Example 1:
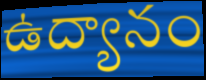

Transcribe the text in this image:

ఉద్యానం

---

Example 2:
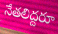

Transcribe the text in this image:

నేతలిద్దరూ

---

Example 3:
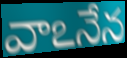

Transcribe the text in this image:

వాఽనేన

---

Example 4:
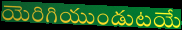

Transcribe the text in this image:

యెరిగియుండుటయే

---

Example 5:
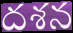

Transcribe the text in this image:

దశన